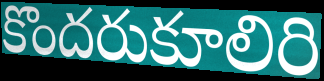
కొందరుకూలిరి